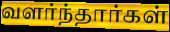
வளர்ந்தார்கள்